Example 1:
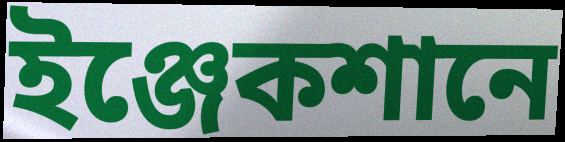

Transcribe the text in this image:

ইঞ্জেকশানে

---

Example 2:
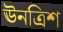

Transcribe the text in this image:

ঊনত্রিশ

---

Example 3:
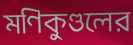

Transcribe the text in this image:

মণিকুণ্ডলের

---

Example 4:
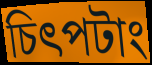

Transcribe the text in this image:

চিৎপটাং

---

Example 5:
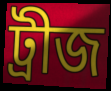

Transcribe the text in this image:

ট্রীজ